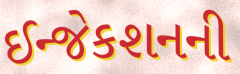
ઈન્જેકશનની